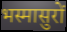
भस्मासुरों